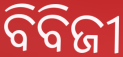
ବିବିଜୀ